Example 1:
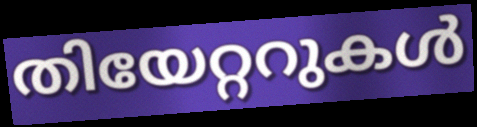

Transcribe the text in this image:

തിയേറ്ററുകൾ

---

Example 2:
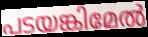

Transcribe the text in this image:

പടയങ്കിമേൽ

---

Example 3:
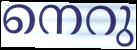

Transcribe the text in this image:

നെറു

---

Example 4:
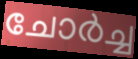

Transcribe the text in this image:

ചോർച്ച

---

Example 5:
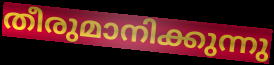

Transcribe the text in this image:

തീരുമാനിക്കുന്നു